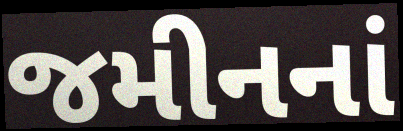
જમીનનાં